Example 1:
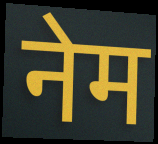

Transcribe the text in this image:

नेम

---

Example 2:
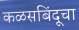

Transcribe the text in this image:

कळसबिंदूचा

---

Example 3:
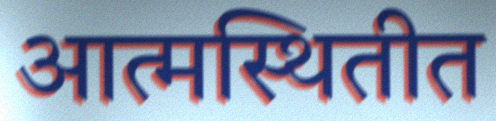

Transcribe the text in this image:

आत्मस्थितीत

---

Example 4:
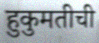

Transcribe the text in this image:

हुकुमतीची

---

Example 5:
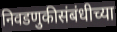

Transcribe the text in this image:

निवडणुकीसंबंधीच्या